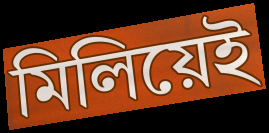
মিলিয়েই